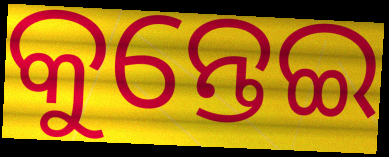
କୁନ୍ତେଇ